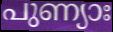
പുണ്യാഃ